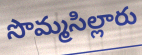
సొమ్మసిల్లారు